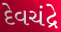
દેવચંદ્રે